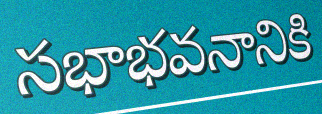
సభాభవనానికి